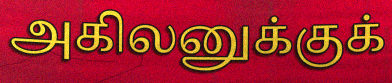
அகிலனுக்குக்